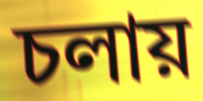
চলায়